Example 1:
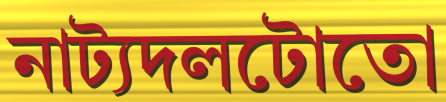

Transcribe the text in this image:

নাট্যদলটোতো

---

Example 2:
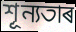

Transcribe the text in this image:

শূন্যতাৰ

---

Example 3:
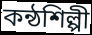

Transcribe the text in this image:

কন্ঠশিল্পী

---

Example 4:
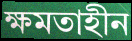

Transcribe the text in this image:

ক্ষমতাহীন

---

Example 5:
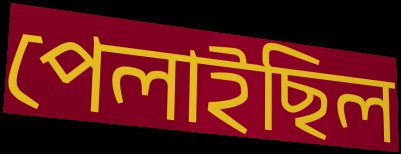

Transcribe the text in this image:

পেলাইছিল